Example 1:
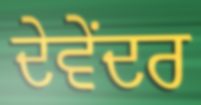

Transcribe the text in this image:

ਦੇਵੇਂਦਰ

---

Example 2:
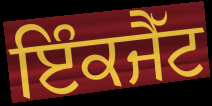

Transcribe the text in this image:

ਇੰਕਜੈੱਟ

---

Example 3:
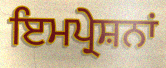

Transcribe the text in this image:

ਇਮਪ੍ਰੇਸ਼ਨਾਂ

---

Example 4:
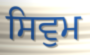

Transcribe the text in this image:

ਸਿਵੁਮ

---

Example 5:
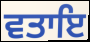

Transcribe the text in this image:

ਵਤਾਇ